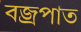
বজ্রপাত